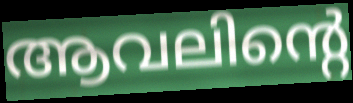
ആവലിന്റെ